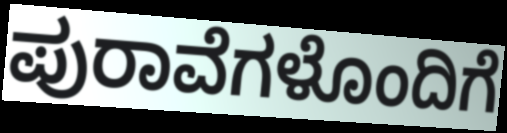
ಪುರಾವೆಗಳೊಂದಿಗೆ